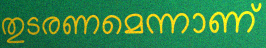
തുടരണമെന്നാണ്